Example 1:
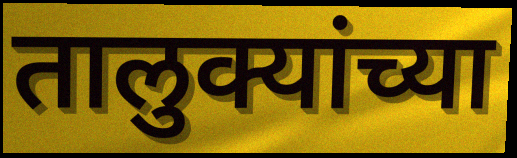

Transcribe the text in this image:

तालुक्यांच्या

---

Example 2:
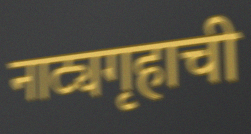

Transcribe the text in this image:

नाट्यगृहाची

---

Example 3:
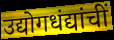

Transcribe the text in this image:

उद्योगधंद्यांचीं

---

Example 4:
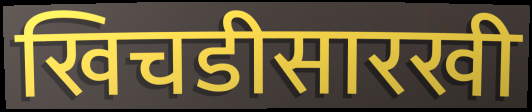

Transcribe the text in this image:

खिचडीसारखी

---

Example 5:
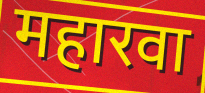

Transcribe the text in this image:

महारवा